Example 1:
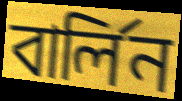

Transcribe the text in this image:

বাৰ্লিন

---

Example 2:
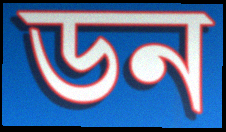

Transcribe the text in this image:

ডন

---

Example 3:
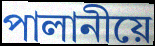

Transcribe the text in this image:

পালানীয়ে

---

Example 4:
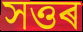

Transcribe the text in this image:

সত্তৰ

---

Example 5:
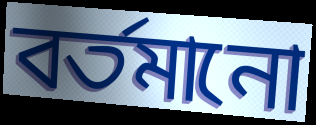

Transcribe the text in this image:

বৰ্তমানো